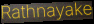
Rathnayake